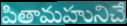
పితామహునిచే